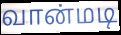
வான்மடி